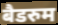
बैडरुम